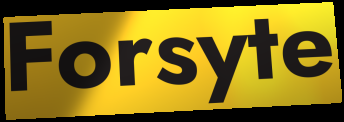
Forsyte